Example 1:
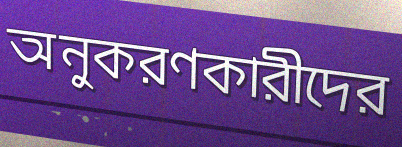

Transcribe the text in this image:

অনুকরণকারীদের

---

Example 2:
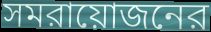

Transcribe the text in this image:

সমরায়োজনের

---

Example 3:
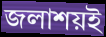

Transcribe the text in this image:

জলাশয়ই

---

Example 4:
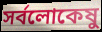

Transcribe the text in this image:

সর্বলোকেষু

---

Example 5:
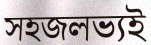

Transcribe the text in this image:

সহজলভ্যই